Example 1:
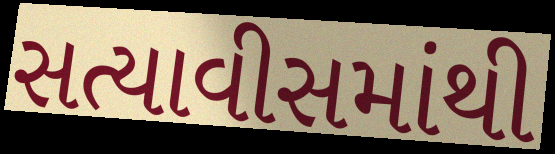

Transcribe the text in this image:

સત્યાવીસમાંથી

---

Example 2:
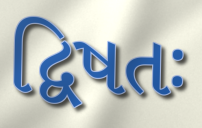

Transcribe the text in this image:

દ્વિષતઃ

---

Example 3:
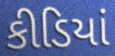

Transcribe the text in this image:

કીડિયાં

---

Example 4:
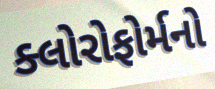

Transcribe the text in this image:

ક્લોરોફોર્મનો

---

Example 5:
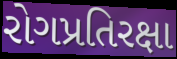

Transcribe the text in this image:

રોગપ્રતિરક્ષા